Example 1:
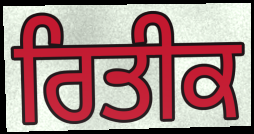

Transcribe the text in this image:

ਰਿਤੀਕ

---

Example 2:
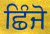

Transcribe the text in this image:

ਛਿੰਜੋ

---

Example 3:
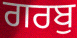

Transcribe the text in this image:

ਗਰਬੁ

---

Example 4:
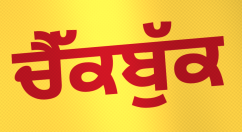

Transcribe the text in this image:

ਚੈੱਕਬੁੱਕ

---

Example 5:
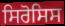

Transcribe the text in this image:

ਸਿਰੋਸਿਸ